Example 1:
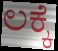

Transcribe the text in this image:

ಲಕ್ಕೆ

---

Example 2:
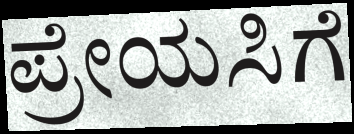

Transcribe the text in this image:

ಪ್ರೇಯಸಿಗೆ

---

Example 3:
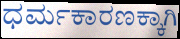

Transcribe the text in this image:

ಧರ್ಮಕಾರಣಕ್ಕಾಗಿ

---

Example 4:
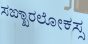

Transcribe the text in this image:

ಸಙ್ಖಾರಲೋಕಸ್ಸ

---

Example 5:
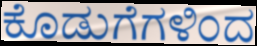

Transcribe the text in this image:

ಕೊಡುಗೆಗಳಿಂದ